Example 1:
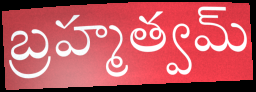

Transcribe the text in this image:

బ్రహ్మత్వమ్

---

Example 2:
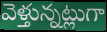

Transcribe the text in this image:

వెళ్తున్నట్లుగా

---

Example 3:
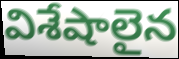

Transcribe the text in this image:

విశేషాలైన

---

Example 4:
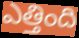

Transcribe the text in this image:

ఎత్తింది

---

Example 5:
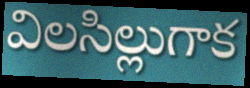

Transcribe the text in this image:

విలసిల్లుగాక